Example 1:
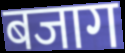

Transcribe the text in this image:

बजाग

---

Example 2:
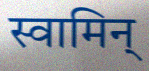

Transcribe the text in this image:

स्वामिन्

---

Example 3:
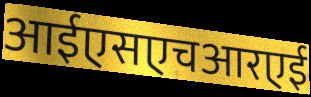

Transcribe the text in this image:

आईएसएचआरएई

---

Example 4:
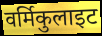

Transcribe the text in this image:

वर्मिकुलाइट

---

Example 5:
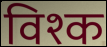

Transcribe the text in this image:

विश्क